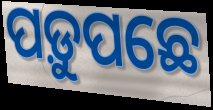
ପଡ଼ୁପଛେ